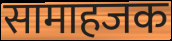
सामाहजक